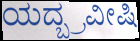
ಯದ್ಬ್ರವೀಷಿ